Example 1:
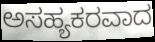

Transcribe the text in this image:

ಅಸಹ್ಯಕರವಾದ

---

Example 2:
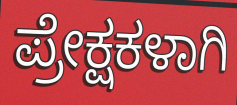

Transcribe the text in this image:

ಪ್ರೇಕ್ಷಕಳಾಗಿ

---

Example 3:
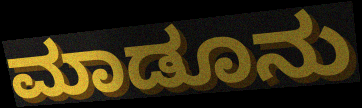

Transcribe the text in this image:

ಮಾಡೂನು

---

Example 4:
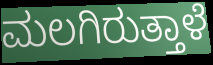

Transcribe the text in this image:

ಮಲಗಿರುತ್ತಾಳೆ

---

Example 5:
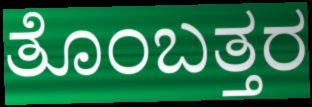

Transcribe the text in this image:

ತೊಂಬತ್ತರ